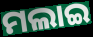
ମଲାଇ